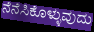
ನೆನೆಸಿಕೊಳ್ಳುವುದು